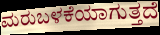
ಮರುಬಳಕೆಯಾಗುತ್ತದೆ